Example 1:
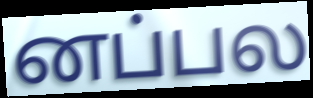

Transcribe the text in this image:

னப்பல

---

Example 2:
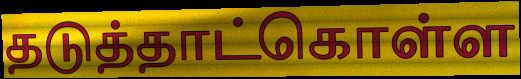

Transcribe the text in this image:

தடுத்தாட்கொள்ள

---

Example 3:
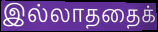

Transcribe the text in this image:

இல்லாததைக்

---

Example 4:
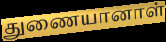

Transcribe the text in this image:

துணையானாள்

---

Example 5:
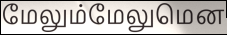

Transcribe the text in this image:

மேலும்மேலுமென